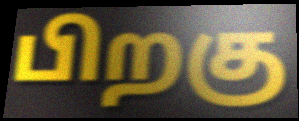
பிறகு